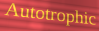
Autotrophic